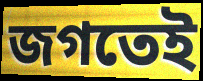
জগতেই